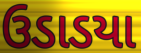
ઉડાડયા